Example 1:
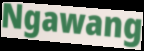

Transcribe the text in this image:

Ngawang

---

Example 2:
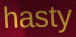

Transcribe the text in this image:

hasty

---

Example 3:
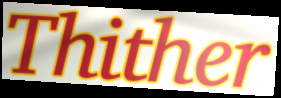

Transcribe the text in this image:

Thither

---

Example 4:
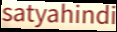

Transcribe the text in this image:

satyahindi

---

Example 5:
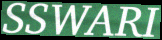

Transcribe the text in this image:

SSWARI